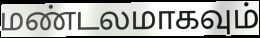
மண்டலமாகவும்